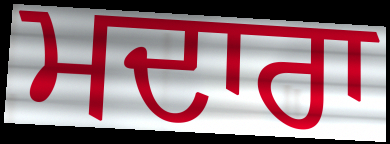
ਮਦਾਰਾ